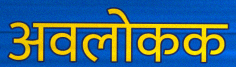
अवलोकक